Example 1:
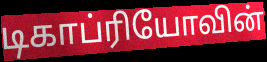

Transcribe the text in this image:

டிகாப்ரியோவின்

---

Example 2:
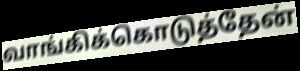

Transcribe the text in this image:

வாங்கிக்கொடுத்தேன்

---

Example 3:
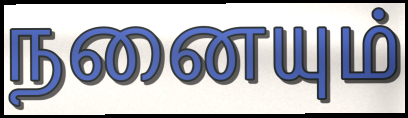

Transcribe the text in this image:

நனையும்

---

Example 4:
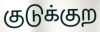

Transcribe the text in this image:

குடுக்குற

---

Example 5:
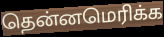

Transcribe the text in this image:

தென்னமெரிக்க